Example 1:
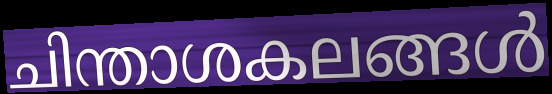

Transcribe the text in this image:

ചിന്താശകലങ്ങൾ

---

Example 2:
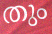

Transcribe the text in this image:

തും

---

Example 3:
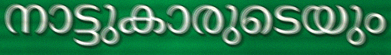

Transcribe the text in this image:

നാട്ടുകാരുടെയും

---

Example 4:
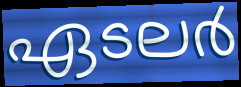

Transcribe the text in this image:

ഏടലർ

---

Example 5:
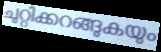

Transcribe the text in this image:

ചുറ്റിക്കറങ്ങുകയും